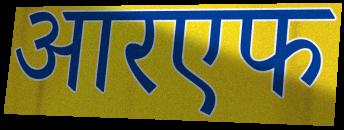
आरएफ